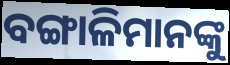
ବଙ୍ଗାଳିମାନଙ୍କୁ